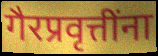
गैरप्रवृत्तींना